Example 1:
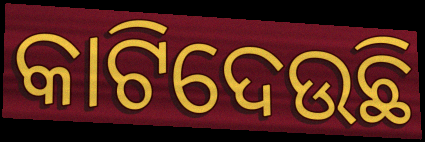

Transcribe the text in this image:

କାଟିଦେଉଛି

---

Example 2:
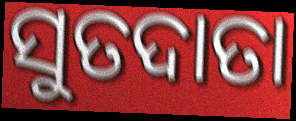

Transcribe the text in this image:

ସୁତଦାତା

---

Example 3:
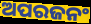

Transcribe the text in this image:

ଅପରଜନଂ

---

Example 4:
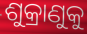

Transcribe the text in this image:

ଶୁକ୍ରାଣୁକୁ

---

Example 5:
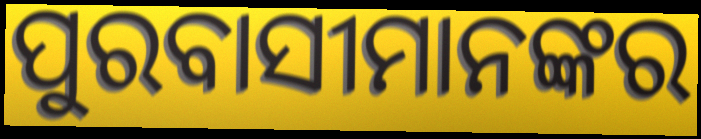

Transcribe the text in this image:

ପୁରବାସୀମାନଙ୍କର